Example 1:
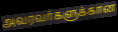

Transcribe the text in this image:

அவரவர்களுக்கான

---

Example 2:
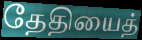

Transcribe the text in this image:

தேதியைத்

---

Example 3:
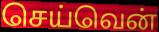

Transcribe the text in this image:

செய்வென்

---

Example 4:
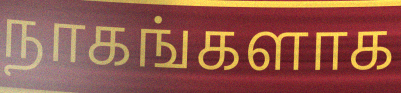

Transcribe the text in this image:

நாகங்களாக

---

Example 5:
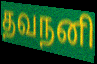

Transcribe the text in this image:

தவநனி